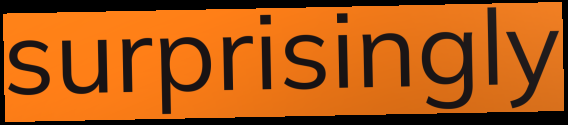
surprisingly